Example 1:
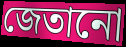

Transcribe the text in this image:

জেতানো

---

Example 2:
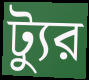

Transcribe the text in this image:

ট্যুর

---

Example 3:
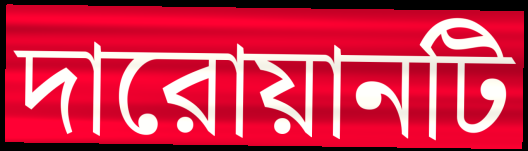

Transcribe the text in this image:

দারোয়ানটি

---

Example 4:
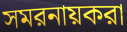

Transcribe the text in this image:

সমরনায়করা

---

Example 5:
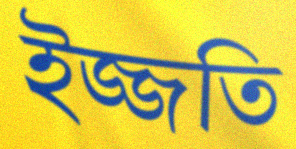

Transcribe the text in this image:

ইজ্জতি